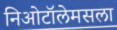
निओटॉलेमसला